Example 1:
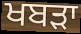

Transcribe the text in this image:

ਖਬੜਾ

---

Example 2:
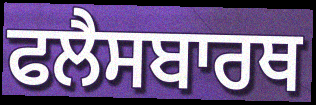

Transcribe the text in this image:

ਫਲੈਸਬਾਰਥ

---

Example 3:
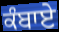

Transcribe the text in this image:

ਕੰਬਾਏ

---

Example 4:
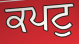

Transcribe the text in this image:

ਕਪਟੁ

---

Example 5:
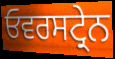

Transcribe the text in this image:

ਓਵਰਸਟ੍ਰੇਨ